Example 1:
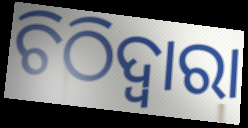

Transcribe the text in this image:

ଚିଠିଦ୍ୱାରା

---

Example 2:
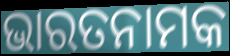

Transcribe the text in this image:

ଭାରତନାମକ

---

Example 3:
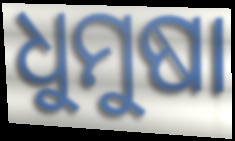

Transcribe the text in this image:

ଧୁମୁଷା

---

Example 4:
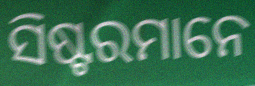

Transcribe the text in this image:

ସିଷ୍ଟରମାନେ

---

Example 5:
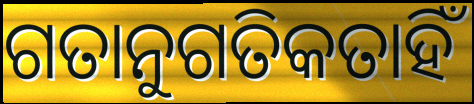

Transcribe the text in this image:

ଗତାନୁଗତିକତାହିଁ